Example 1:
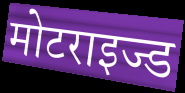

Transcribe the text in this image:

मोटराइज्ड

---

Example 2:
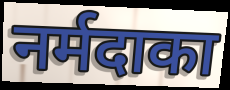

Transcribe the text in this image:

नर्मदाका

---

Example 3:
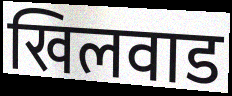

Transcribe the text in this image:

खिलवाड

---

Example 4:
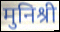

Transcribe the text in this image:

मुनिश्री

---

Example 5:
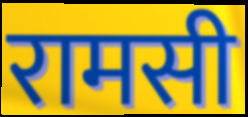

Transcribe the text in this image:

रामसी